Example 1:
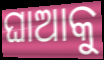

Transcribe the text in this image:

ଘାଆକୁ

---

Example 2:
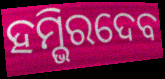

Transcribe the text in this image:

ହମ୍ଭିରଦେବ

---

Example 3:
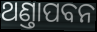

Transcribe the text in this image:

ଥଣ୍ତାପବନ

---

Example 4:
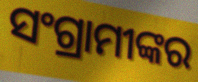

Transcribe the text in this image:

ସଂଗ୍ରାମୀଙ୍କର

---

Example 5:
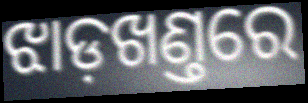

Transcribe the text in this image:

ଝାଡ଼ଖଣ୍ତରେ